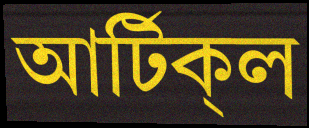
আর্টিক্‌ল